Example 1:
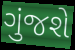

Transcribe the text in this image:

ગુંજશે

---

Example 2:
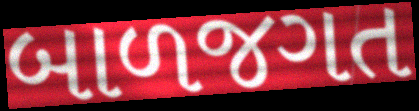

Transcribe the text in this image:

બાળજગત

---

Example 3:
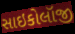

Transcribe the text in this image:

સાઇકોલૉજી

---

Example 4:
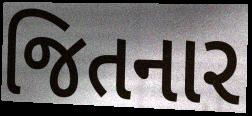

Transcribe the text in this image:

જિતનાર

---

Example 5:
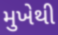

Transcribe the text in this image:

મુખેથી